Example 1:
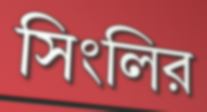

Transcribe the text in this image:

সিংলির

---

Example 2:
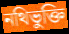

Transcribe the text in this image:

নথিভুক্তি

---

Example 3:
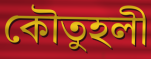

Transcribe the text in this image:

কৌতুহলী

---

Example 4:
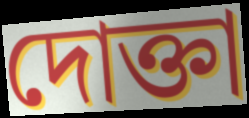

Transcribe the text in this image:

দোক্তা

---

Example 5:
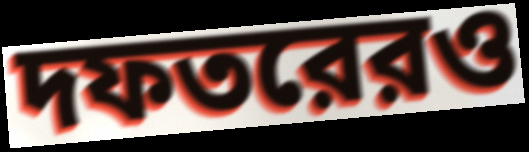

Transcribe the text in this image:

দফতরেরও